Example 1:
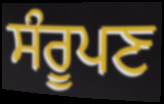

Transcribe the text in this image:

ਸੰਰੂਪਣ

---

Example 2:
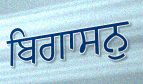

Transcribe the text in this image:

ਬਿਗਾਸਨੁ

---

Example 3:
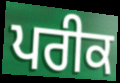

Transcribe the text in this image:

ਪਰੀਕ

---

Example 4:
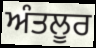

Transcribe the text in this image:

ਅੰਤਲੂਰ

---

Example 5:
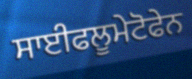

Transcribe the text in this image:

ਸਾਈਫਲੂਮੇਟੋਫੇਨ